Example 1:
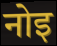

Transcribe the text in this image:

नोइ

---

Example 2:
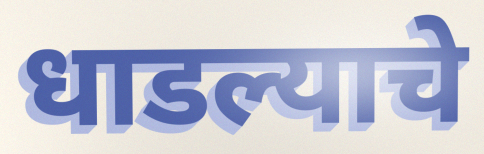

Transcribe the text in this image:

धाडल्याचे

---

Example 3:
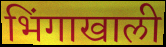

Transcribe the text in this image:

भिंगाखाली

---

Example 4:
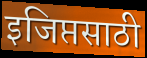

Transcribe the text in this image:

इजिप्तसाठी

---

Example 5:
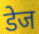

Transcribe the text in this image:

डेज